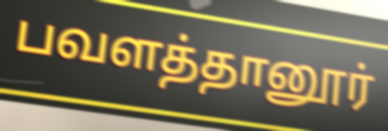
பவளத்தானூர்